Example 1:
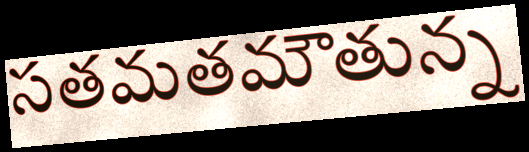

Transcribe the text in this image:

సతమతమౌతున్న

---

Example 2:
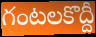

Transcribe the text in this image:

గంటలకొద్దీ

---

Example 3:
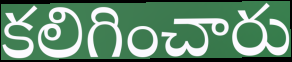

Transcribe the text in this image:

కలిగించారు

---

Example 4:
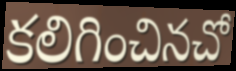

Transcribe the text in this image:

కలిగించినచో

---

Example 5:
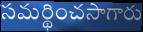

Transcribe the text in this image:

సమర్థించసాగారు